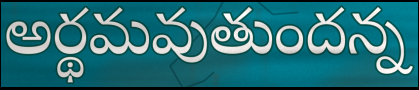
అర్థమవుతుందన్న